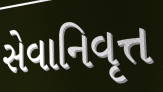
સેવાનિવૃત્ત